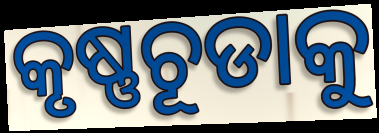
କୃଷ୍ଣଚୂଡାକୁ